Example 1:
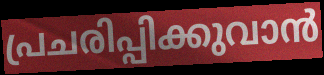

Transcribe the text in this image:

പ്രചരിപ്പിക്കുവാൻ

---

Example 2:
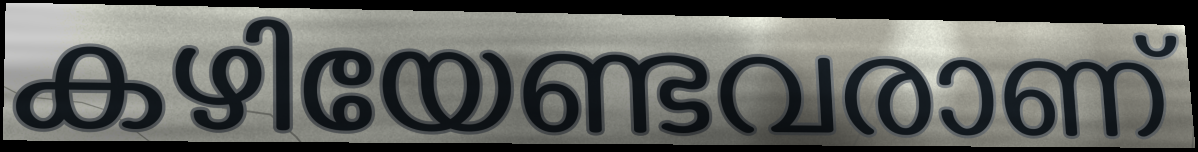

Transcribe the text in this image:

കഴിയേണ്ടവരാണ്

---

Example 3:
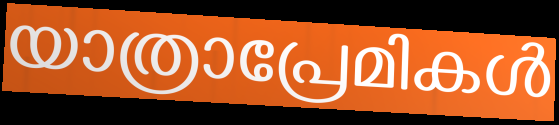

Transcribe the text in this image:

യാത്രാപ്രേമികൾ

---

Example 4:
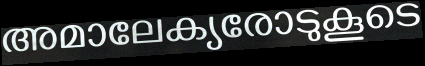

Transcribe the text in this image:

അമാലേക്യരോടുകൂടെ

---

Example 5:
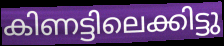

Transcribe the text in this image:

കിണട്ടിലെക്കിട്ടു